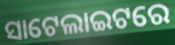
ସାଟେଲାଇଟରେ